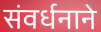
संवर्धनाने